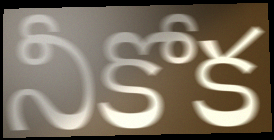
నీకోక